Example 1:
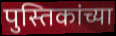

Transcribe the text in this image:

पुस्तिकांच्या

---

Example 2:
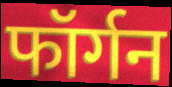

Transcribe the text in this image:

फॉर्गन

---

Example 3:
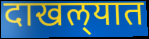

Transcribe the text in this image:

दाखल्यात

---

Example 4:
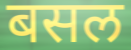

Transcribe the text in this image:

बसल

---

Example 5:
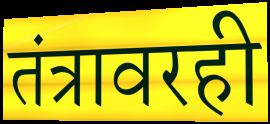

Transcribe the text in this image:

तंत्रावरही